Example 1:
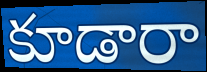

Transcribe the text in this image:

కూడారా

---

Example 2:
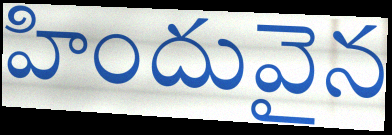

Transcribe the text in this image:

హిందువైన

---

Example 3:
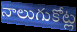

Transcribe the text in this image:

నాలుగుకోట్ల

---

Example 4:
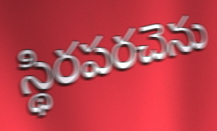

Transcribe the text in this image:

స్థిరపరచెను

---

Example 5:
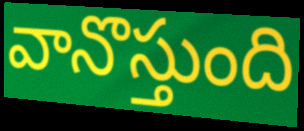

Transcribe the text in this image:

వానొస్తుంది